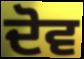
ਦੋਵ